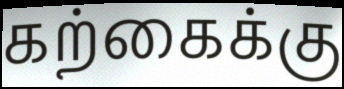
கற்கைக்கு